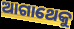
ଆଗାଥେକୁ